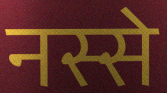
नस्से